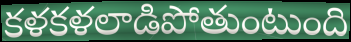
కళకళలాడిపోతుంటుంది